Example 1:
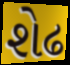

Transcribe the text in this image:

શેઢ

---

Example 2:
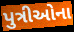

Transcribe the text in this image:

પુત્રીઓના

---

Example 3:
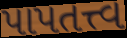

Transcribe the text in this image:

પાપતત્ત્વ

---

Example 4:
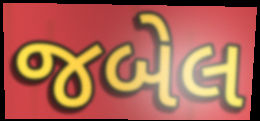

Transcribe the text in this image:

જબેલ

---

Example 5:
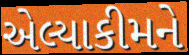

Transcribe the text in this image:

એલ્યાકીમને